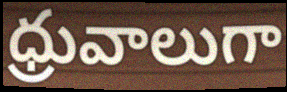
ధ్రువాలుగా